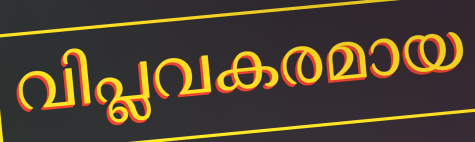
വിപ്ലവകരമായ